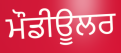
ਮੌਡੀਊਲਰ